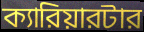
ক্যারিয়ারটার